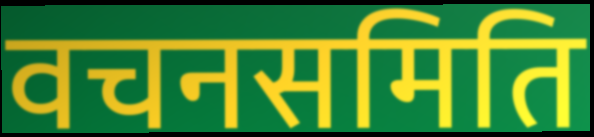
वचनसमिति